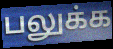
பலுக்க